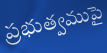
ప్రభుత్వముపై